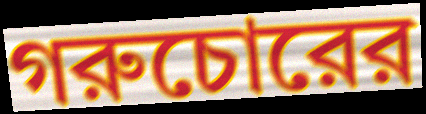
গরুচোরের